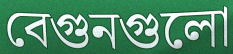
বেগুনগুলো